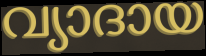
വ്യാദായ